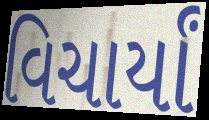
વિચાર્યાં